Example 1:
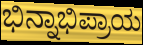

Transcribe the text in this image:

ಭಿನ್ನಾಭಿಪ್ರಾಯ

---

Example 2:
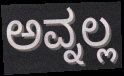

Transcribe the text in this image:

ಅವ್ನಲ್ಲ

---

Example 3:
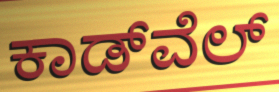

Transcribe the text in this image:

ಕಾಡ್‌ವೆಲ್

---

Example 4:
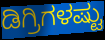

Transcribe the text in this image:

ಡಿಗ್ರಿಗಳಷ್ಟು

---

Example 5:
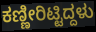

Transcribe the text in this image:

ಕಣ್ಣೀರಿಟ್ಟಿದ್ದಳು